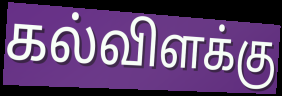
கல்விளக்கு